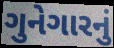
ગુનેગારનું